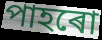
পাহৰো